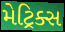
મેટ્રિક્સ